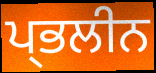
ਪ੍ਭਲੀਨ